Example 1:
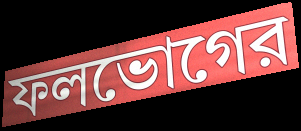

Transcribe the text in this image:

ফলভোগের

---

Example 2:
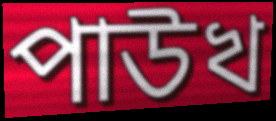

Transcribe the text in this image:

পাউখ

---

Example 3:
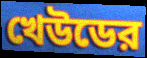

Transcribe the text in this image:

খেউডের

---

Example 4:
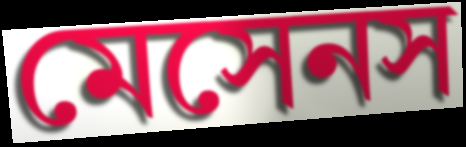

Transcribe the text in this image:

মেসেনস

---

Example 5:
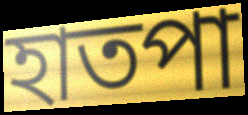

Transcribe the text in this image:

হাতপা